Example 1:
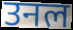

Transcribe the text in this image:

उनल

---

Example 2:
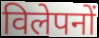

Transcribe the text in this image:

विलेपनों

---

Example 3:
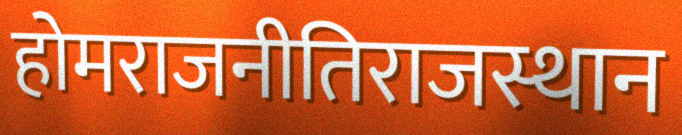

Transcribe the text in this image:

होमराजनीतिराजस्थान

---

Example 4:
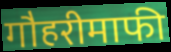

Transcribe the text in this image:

गौहरीमाफी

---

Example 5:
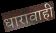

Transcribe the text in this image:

धारावाही